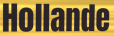
Hollande